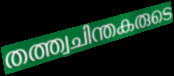
തത്ത്വചിന്തകരുടെ